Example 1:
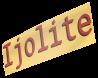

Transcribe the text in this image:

Ijolite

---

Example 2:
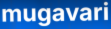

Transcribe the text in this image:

mugavari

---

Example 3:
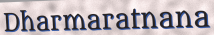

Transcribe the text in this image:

Dharmaratnana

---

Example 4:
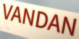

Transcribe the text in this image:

VANDAN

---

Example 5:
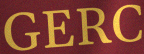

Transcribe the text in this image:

GERC